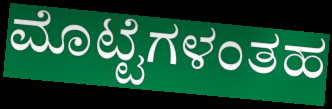
ಮೊಟ್ಟೆಗಳಂತಹ